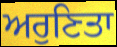
ਅਰੁਣਿਤਾ